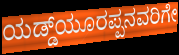
ಯಡ್ಡ್‌ಯೂರಪ್ಪನವರಿಗೇ